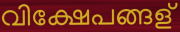
വിക്ഷേപങ്ങള്